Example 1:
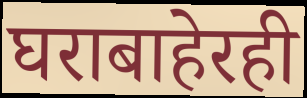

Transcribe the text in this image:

घराबाहेरही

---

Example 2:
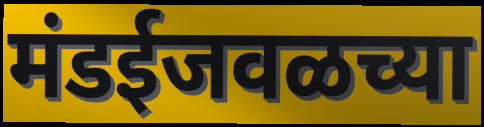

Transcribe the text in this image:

मंडईजवळच्या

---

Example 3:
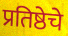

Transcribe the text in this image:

प्रतिष्ठेचे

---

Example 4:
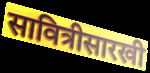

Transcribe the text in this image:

सावित्रीसारखी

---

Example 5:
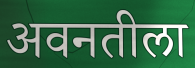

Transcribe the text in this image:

अवनतीला